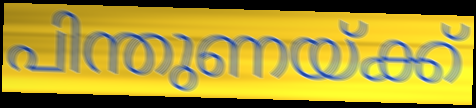
പിന്തുണയ്ക്ക്